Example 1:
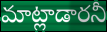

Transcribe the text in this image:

మాట్లాడారనీ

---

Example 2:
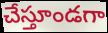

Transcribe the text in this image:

చేస్తూండగా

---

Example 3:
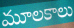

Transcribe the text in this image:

మూలకాలు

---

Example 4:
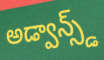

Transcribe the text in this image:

అడ్వాన్స్డ్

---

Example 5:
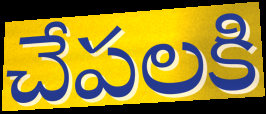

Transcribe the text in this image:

చేపలకి